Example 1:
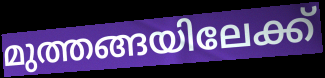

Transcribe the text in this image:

മുത്തങ്ങയിലേക്ക്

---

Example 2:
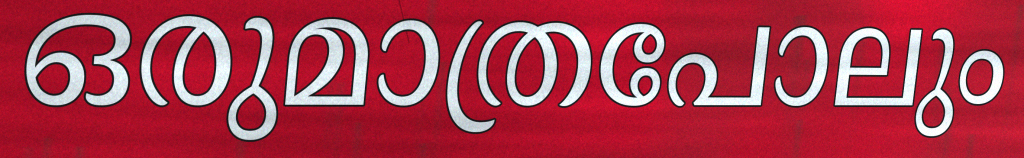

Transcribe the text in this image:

ഒരുമാത്രപോലും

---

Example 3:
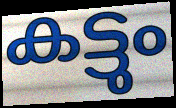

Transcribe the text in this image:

കട്ടും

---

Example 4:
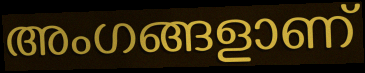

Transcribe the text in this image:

അംഗങ്ങളാണ്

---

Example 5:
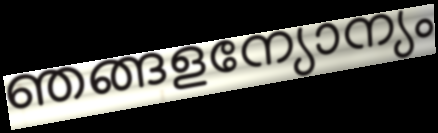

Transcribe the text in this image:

ഞങ്ങളന്യോന്യം